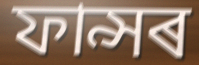
ফান্সৰ